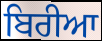
ਬਿਰੀਆ